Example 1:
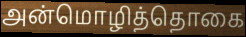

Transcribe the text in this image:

அன்மொழித்தொகை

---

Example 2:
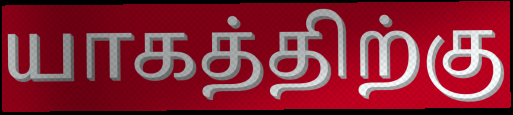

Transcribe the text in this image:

யாகத்திற்கு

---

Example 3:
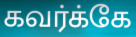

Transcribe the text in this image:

கவர்க்கே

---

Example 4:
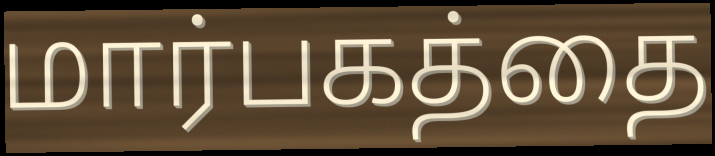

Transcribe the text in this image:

மார்பகத்தை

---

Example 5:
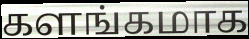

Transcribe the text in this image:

களங்கமாக